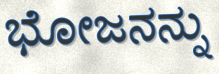
ಭೋಜನನ್ನು